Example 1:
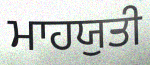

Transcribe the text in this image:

ਮਾਹਯੁਤੀ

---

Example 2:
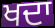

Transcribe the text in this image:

ਖਦਾ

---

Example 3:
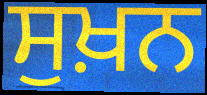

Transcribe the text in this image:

ਸੁਖ਼ਨ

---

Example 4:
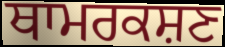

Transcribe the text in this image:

ਥਾਮਰਕਸ਼ਣ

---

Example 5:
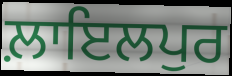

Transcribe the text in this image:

ਲ਼ਾਇਲਪੁਰ